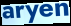
aryen